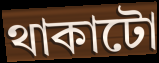
থাকাটো